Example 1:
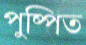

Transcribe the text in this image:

পুষ্পিত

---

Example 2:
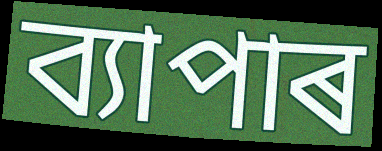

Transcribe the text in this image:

ব্যাপাৰ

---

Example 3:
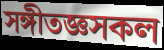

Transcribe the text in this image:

সঙ্গীতজ্ঞসকল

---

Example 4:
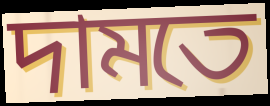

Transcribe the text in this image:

দামতে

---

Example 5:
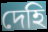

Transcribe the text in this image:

দেহি